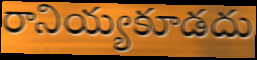
రానియ్యకూడదు